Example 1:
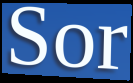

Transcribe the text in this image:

Sor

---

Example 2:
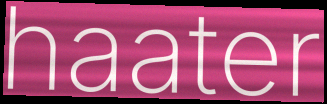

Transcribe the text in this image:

haater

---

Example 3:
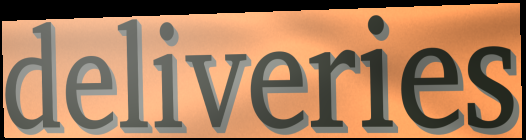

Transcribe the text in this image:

deliveries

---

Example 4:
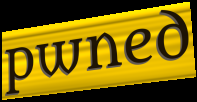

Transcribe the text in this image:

pwned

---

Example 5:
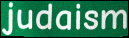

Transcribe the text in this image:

judaism